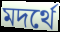
মদর্থে